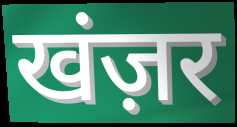
खंज़र